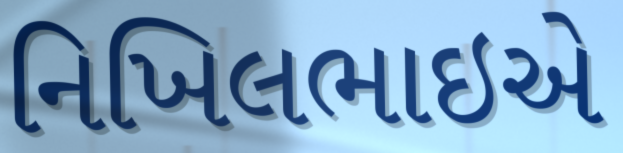
નિખિલભાઇએ